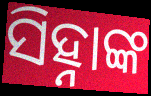
ସିହ୍ନାଙ୍କ